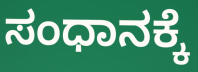
ಸಂಧಾನಕ್ಕೆ